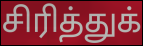
சிரித்துக்